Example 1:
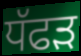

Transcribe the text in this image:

ਧੱਫੜ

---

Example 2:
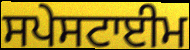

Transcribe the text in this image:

ਸਪੇਸਟਾਈਮ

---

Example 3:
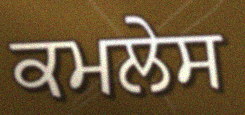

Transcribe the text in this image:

ਕਮਲੇਸ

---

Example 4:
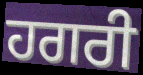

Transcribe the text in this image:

ਹਗਰੀ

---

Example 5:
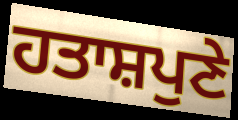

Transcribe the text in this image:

ਹਤਾਸ਼ਪੁਣੇ